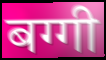
बग्‍गी